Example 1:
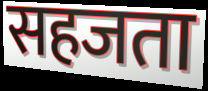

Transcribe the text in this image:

सहजता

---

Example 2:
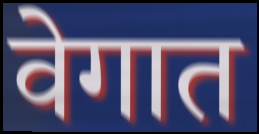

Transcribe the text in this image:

वेगात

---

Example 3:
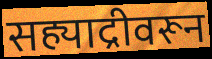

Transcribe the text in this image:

सह्याद्रीवरून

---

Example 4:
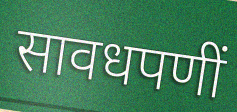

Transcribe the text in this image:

सावधपणीं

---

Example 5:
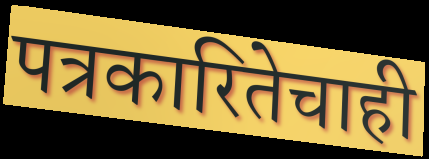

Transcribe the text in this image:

पत्रकारितेचाही